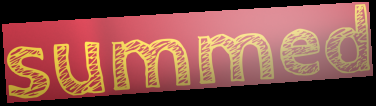
summed